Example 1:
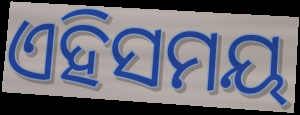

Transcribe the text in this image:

ଏହିସମୟ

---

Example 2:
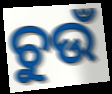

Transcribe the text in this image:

ଚୁଉଁ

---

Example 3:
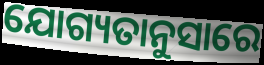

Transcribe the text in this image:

ଯୋଗ୍ୟତାନୁସାରେ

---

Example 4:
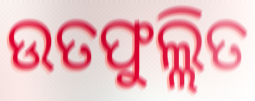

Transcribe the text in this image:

ଉତଫୁଲ୍ଲିତ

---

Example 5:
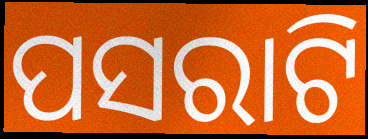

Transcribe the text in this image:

ପସରାଟି